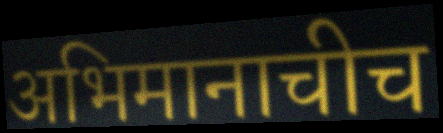
अभिमानाचीच